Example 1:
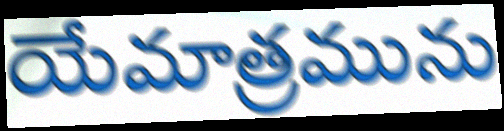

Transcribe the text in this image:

యేమాత్రమును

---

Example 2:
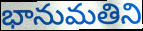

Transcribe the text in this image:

భానుమతిని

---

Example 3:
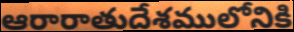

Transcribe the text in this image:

ఆరారాతుదేశములోనికి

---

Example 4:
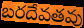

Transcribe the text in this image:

బరదేవతవు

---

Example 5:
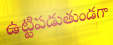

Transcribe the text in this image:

ఉట్టిపడుతుండగా